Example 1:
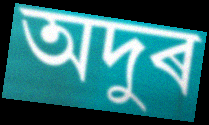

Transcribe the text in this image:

অদুৰ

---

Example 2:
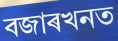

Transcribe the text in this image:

বজাৰখনত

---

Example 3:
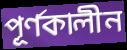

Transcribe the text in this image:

পূৰ্ণকালীন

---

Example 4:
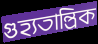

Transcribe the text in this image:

গুহ্যতান্ত্ৰিক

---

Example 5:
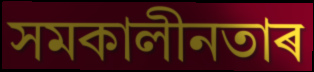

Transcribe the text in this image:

সমকালীনতাৰ